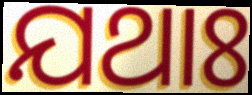
ଯଥାଃ